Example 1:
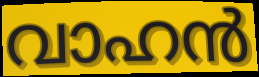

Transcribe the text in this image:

വാഹൻ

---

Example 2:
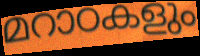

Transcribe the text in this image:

മറാഠകളും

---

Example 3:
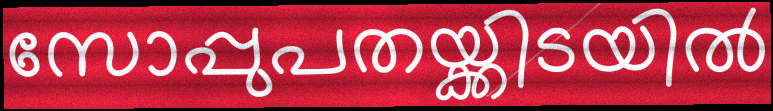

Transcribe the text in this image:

സോപ്പുപതയ്ക്കിടയിൽ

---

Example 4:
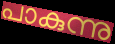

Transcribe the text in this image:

പാകുന്നു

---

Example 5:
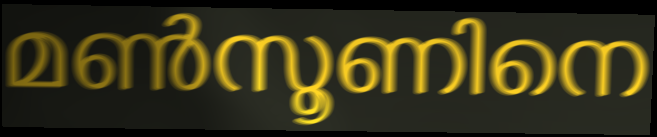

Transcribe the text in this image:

മൺസൂണിനെ